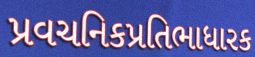
પ્રવચનિકપ્રતિભાધારક